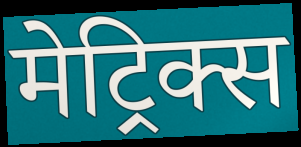
मेट्रिक्स